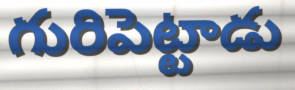
గురిపెట్టాడు